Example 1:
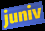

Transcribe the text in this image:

juniv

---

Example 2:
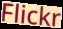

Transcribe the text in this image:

Flickr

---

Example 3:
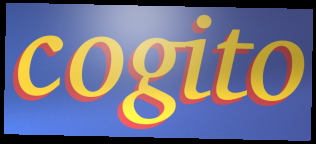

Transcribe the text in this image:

cogito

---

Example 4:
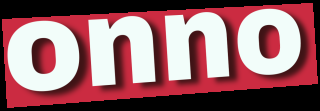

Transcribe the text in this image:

onno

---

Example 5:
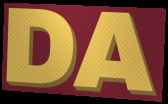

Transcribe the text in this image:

DA